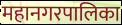
महानगरपालिका